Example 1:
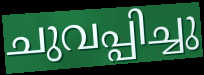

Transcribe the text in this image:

ചുവപ്പിച്ചു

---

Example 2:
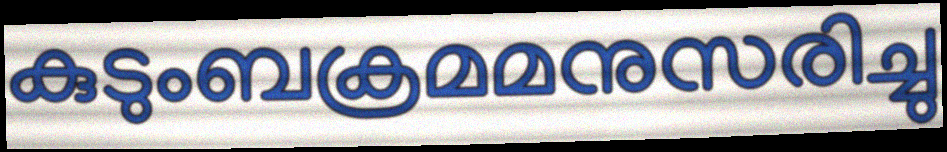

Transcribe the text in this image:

കുടുംബക്രമമനുസരിച്ചു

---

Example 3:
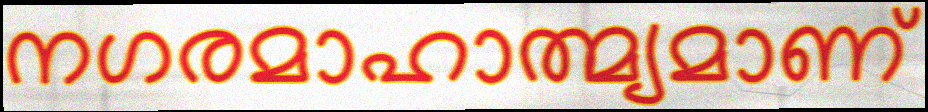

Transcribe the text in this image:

നഗരമാഹാത്മ്യമാണ്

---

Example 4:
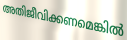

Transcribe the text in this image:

അതിജീവിക്കണമെങ്കിൽ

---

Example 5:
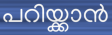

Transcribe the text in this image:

പറിയ്ക്കാൻ